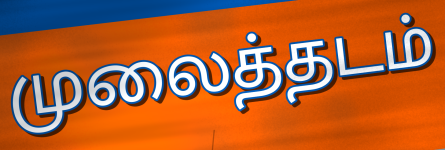
முலைத்தடம்